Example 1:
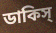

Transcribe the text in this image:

ডাকিস্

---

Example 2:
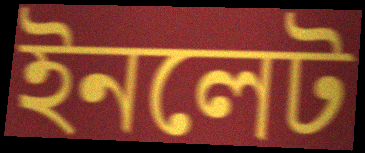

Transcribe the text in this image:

ইনলেট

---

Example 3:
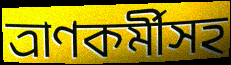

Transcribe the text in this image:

ত্রাণকর্মীসহ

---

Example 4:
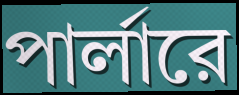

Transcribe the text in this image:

পার্লারে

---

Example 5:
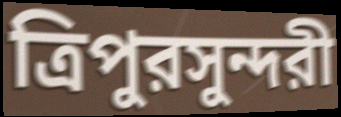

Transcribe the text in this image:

ত্রিপুরসুন্দরী